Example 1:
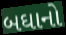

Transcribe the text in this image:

બઘાનો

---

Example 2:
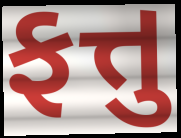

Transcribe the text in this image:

ફત્તુ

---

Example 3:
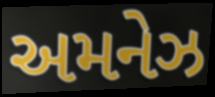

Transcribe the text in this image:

અમનેઝ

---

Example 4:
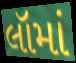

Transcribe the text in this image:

લૉમાં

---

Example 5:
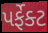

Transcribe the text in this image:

પર્ફેક્ટ